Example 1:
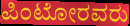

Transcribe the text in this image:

ಪಿಂಟೋರವರು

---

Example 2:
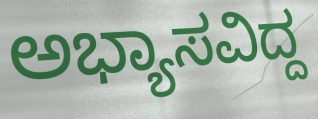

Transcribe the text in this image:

ಅಭ್ಯಾಸವಿದ್ದ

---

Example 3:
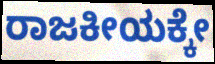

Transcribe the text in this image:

ರಾಜಕೀಯಕ್ಕೇ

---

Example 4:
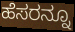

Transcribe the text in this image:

ಹೆಸರನ್ನೂ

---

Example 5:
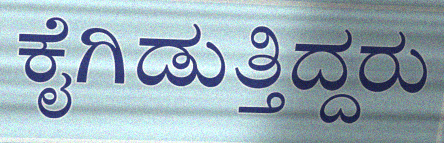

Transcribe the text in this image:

ಕೈಗಿಡುತ್ತಿದ್ದರು